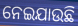
ନେଇଯାଉଛି